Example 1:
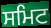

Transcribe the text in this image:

ਸਮਿਟ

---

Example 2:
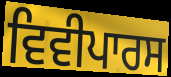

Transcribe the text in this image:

ਵਿਵੀਪਾਰਸ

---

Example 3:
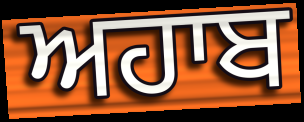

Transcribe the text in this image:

ਅਹਾਬ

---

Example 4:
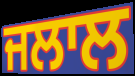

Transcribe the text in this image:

ਜਲਾਲ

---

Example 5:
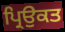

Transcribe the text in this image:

ਪ੍ਰਿਉਕਤ